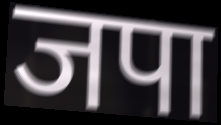
जपा